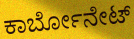
ಕಾರ್ಬೋನೇಟ್